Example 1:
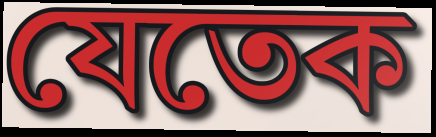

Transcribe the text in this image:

যেতেক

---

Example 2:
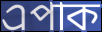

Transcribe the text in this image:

এপাক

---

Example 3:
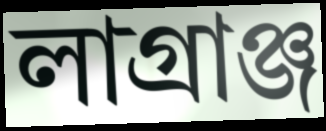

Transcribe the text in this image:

লাগ্ৰাঞ্জ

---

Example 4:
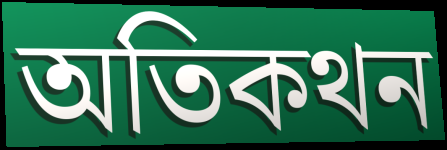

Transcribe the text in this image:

অতিকথন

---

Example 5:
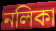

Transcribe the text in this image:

নলিকা